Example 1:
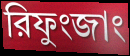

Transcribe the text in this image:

রিফুংজাং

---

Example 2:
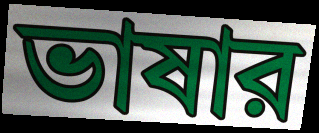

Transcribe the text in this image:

ভাষার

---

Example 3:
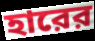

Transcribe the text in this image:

হারের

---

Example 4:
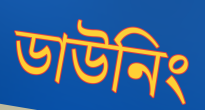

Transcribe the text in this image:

ডাউনিং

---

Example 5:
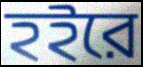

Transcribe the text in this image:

হইরে